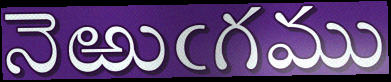
నెఱుఁగము